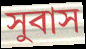
সুবাস